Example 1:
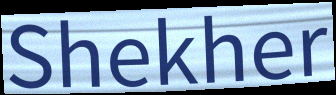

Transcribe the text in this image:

Shekher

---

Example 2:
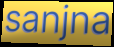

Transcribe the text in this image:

sanjna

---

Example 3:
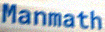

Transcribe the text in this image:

Manmath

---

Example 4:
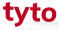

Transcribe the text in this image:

tyto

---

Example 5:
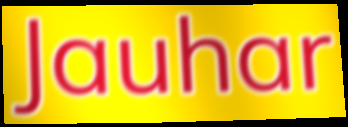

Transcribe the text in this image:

Jauhar